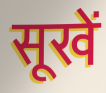
सूखें